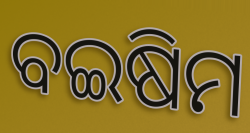
ବଇଷିମ